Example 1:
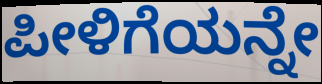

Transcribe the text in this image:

ಪೀಳಿಗೆಯನ್ನೇ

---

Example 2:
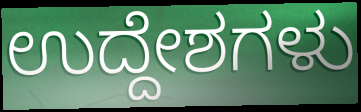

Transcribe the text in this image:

ಉದ್ದೇಶಗಳು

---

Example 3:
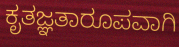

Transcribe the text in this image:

ಕೃತಜ್ಞತಾರೂಪವಾಗಿ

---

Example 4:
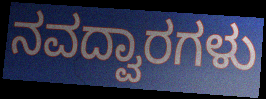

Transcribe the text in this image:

ನವದ್ವಾರಗಳು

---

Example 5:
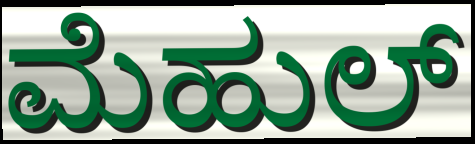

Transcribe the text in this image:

ಮೆಹುಲ್